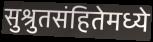
सुश्रुतसंहितेमध्ये